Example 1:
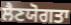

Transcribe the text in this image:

ਲੈਣਯੋਗਤਾ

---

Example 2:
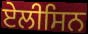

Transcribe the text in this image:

ਏਲੀਸਿਨ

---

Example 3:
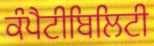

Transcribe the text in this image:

ਕੰਪੈਟੀਬਿਲਿਟੀ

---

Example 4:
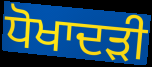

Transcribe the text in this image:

ਧੋਖਾਦੜੀ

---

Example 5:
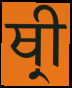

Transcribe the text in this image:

ਥ੍ਰੀ